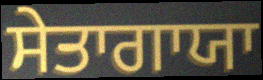
ਸੇਤਾਗਾਯਾ